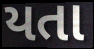
યતા